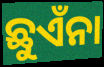
ଛୁଏଁନା